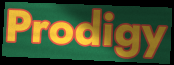
Prodigy